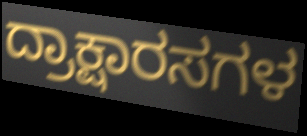
ದ್ರಾಕ್ಷಾರಸಗಳ